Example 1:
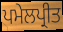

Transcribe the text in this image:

ਪਮੇਲਪ੍ਰੀਤ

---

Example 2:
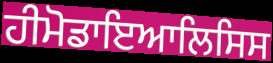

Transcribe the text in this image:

ਹੀਮੋਡਾਇਆਲਿਸਿਸ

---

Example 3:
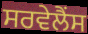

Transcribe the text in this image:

ਸਰਵੇਲੈਂਸ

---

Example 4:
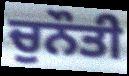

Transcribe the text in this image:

ਚੁਨੌਤੀ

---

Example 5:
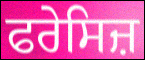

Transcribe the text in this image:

ਫਰੇਸਿਜ਼